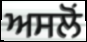
ਅਸਲੋਂ